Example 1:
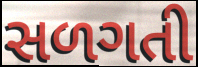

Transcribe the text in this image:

સળગતી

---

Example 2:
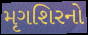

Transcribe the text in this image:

મૃગશિરનો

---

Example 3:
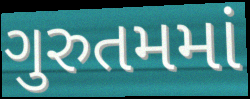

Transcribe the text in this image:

ગુરુતમમાં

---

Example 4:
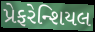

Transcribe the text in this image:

પ્રેફરેન્શિયલ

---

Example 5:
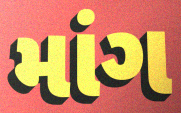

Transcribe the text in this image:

માંગ